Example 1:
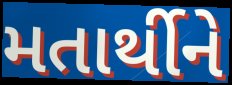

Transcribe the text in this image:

મતાર્થીને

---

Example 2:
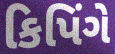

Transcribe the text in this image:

કિપિંગે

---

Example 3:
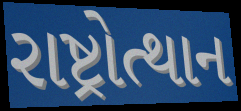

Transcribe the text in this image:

રાષ્ટ્રોત્થાન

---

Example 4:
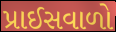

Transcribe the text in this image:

પ્રાઈસવાળો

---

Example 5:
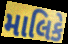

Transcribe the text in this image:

માલિકે